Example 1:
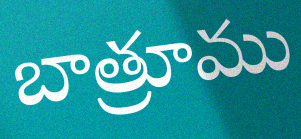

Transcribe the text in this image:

బాత్రూము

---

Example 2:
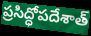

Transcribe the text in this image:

ప్రసిద్ధోపదేశాత్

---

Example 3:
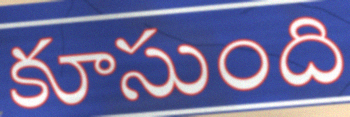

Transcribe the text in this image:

కూసుంది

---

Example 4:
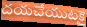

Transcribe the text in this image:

దయచేయుటకై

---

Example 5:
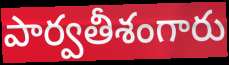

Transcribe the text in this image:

పార్వతీశంగారు